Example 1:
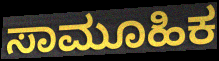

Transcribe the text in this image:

ಸಾಮೂಹಿಕ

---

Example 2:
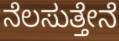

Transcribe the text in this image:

ನೆಲಸುತ್ತೇನೆ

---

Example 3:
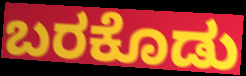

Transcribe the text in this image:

ಬರಕೊಡು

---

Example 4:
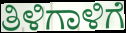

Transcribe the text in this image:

ತಿಳಿಗಾಳಿಗೆ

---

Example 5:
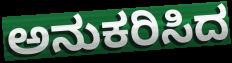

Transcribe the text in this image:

ಅನುಕರಿಸಿದ